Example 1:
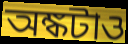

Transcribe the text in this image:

অঙ্কটাও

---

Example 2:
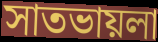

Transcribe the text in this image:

সাতভায়লা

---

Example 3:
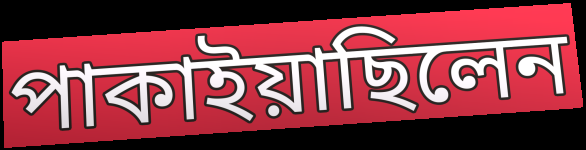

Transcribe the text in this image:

পাকাইয়াছিলেন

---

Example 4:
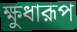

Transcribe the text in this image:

ক্ষুধারূপ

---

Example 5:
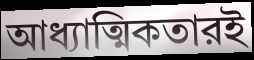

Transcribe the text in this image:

আধ্যাত্মিকতারই